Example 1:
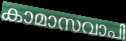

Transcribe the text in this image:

കാമാസവാപി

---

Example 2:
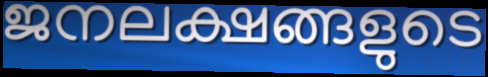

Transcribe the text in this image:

ജനലക്ഷങ്ങളുടെ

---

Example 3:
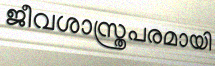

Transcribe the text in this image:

ജീവശാസ്ത്രപരമായി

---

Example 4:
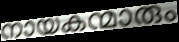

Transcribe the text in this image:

നായകന്മാരും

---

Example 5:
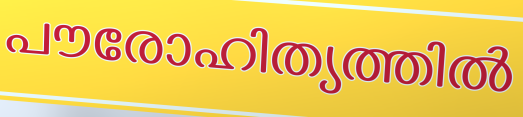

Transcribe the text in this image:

പൗരോഹിത്യത്തിൽ